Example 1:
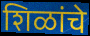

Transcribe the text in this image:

शिळांचे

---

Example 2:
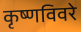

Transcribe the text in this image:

कृष्णविवरे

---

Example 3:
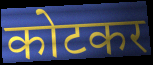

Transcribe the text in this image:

कोटकर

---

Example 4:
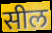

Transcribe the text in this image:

सील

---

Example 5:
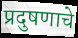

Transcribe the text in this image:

प्रदुषणाचे